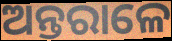
ଅନ୍ତରାଳେ